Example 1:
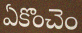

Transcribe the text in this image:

ఏకొంచెం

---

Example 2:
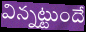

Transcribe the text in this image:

విన్నట్టుందే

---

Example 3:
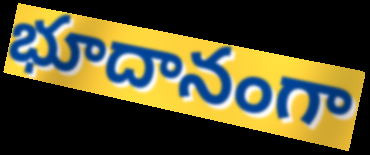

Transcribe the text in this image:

భూదానంగా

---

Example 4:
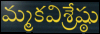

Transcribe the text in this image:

మ్మకవిశ్రేష్ఠు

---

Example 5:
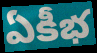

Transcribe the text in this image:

ఏకీభ